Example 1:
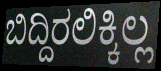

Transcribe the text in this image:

ಬಿದ್ದಿರಲಿಕ್ಕಿಲ್ಲ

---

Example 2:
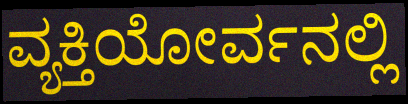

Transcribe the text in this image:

ವ್ಯಕ್ತಿಯೋರ್ವನಲ್ಲಿ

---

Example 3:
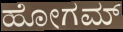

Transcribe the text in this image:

ಹೋಗಮ್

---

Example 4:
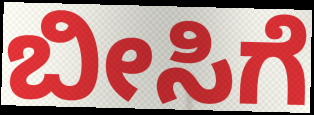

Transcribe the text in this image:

ಬೀಸಿಗೆ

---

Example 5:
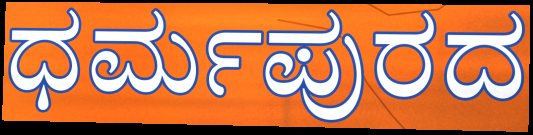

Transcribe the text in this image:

ಧರ್ಮಪುರದ